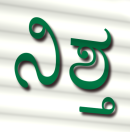
ನಿಶ್ತ